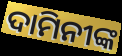
ଦାମିନୀଙ୍କ